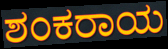
ಶಂಕರಾಯ